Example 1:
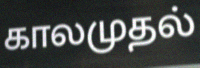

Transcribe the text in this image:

காலமுதல்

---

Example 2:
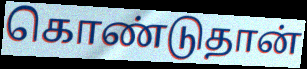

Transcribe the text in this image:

கொண்டுதான்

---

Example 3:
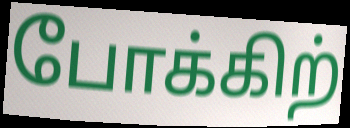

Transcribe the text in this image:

போக்கிற்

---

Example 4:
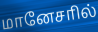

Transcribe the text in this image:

மானேசரில்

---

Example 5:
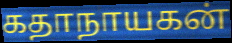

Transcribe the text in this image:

கதாநாயகன்